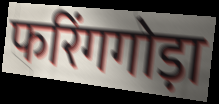
फरिंगगोड़ा